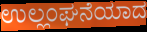
ಉಲ್ಲಂಘನೆಯಾದ